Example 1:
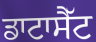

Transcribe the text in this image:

ਡਾਟਾਸੈੱਟ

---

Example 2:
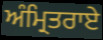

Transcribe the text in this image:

ਅੰਮ੍ਰਿਤਰਾਏ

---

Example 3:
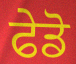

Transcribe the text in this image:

ਫੇਡੋ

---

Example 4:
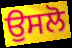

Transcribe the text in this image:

ਉਸਲੋ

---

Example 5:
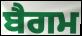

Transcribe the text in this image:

ਬੈਗਮ